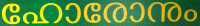
ഹോരോനും